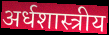
अर्धशास्त्रीय